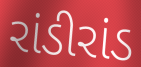
રાંડીરાંડ